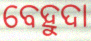
ବେହୁଦା